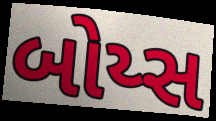
બોય્સ